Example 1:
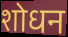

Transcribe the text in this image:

शोधन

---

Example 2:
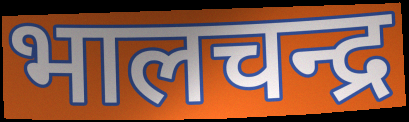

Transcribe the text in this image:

भालचन्द्र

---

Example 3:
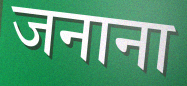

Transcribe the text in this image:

जनाना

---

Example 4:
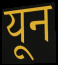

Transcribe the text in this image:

यून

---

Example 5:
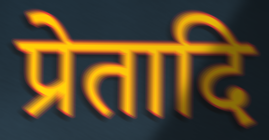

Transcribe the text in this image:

प्रेतादि